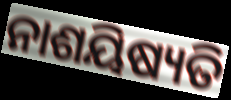
ନାଶୟିଷ୍ୟତି